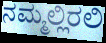
ನಮ್ಮಲ್ಲಿರಲಿ